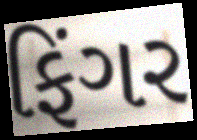
ફિંગર